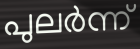
പുലർന്ന്